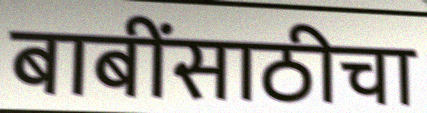
बाबींसाठीचा